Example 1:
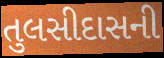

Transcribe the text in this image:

તુલસીદાસની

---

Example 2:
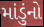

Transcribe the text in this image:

માંડુંનો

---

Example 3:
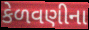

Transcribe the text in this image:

કેળવણીના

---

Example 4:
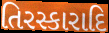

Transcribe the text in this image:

તિરસ્કારાદિ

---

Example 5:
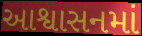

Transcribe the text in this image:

આશ્વાસનમાં